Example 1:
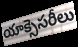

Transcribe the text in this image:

యాక్సెసరీలు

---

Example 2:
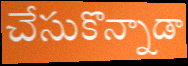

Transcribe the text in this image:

చేసుకొన్నాడా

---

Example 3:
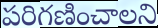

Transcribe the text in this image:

పరిగణించాలని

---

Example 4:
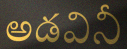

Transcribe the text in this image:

అడవినీ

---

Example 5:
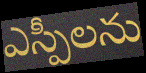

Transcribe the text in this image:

ఎస్పీలను